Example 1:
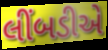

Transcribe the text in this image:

લીંબડીએ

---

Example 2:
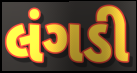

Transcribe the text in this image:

લંગડી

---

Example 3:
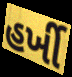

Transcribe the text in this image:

હર્ખી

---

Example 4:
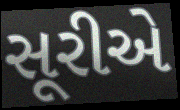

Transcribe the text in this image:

સૂરીએ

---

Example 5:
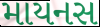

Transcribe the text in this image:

માયનસ